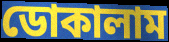
ডোকালাম